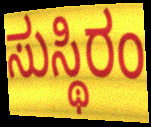
ಸುಸ್ಥಿರಂ